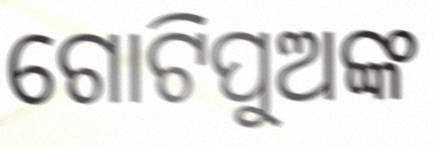
ଗୋଟିପୁଅଙ୍କ